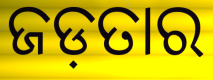
ଜଡ଼ତାର